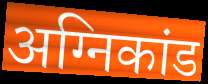
अग्‍निकांड